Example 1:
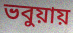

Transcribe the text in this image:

ভবুয়ায়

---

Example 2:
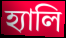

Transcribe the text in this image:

হ্যালি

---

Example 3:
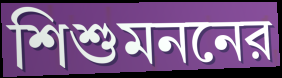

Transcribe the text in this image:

শিশুমননের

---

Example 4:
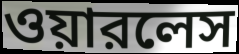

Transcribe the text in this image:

ওয়ারলেস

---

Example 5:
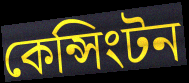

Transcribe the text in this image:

কেন্সিংটন